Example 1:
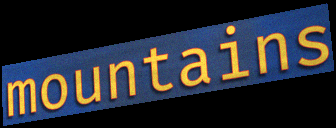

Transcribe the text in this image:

mountains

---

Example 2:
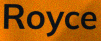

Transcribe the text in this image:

Royce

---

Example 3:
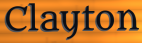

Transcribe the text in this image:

Clayton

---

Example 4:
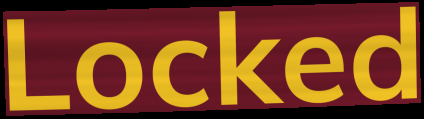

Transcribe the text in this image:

Locked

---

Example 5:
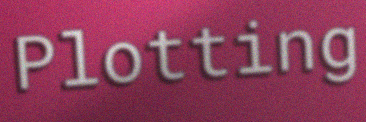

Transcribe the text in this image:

Plotting